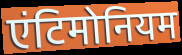
एंटिमोनियम